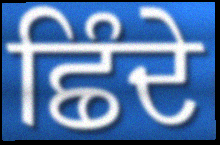
ਛਿੰਦੇ